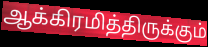
ஆக்கிரமித்திருக்கும்